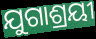
ଯୁଗାଶ୍ରୟୀ